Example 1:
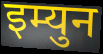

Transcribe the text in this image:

इम्युन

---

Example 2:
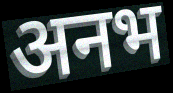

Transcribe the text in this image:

अनभ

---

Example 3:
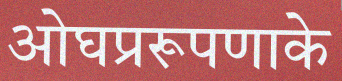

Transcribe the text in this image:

ओघप्ररूपणाके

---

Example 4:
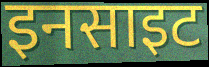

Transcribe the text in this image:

इनसाइट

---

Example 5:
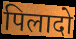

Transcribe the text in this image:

पिलादो